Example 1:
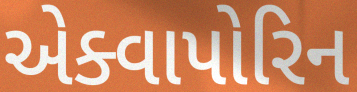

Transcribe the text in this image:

એક્વાપોરિન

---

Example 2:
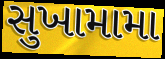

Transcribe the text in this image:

સુખામામા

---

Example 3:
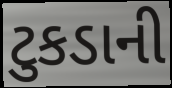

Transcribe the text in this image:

ટુકડાની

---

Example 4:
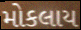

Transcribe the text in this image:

મોકલાય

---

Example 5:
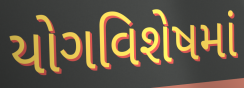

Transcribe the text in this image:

યોગવિશેષમાં